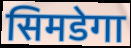
सिमडेगा